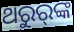
ଥରୁର୍‌ଙ୍କ